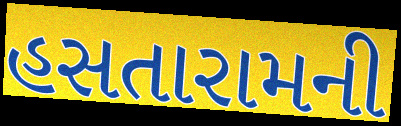
હસતારામની